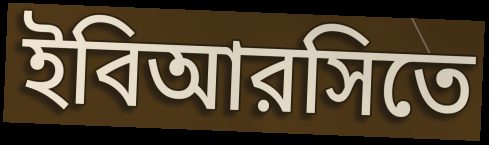
ইবিআরসিতে